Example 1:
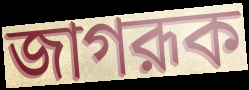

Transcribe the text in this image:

জাগরূক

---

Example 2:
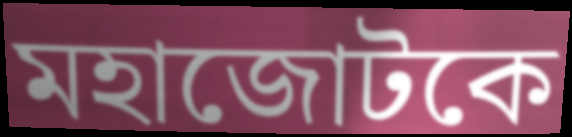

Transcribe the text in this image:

মহাজোটকে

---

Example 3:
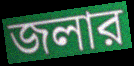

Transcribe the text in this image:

জলার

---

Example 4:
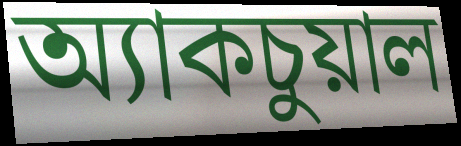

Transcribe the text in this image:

অ্যাকচুয়াল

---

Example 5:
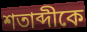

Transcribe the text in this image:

শতাব্দীকে